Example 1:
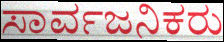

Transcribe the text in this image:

ಸಾರ್ವಜನಿಕರು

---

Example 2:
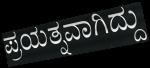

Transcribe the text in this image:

ಪ್ರಯತ್ನವಾಗಿದ್ದು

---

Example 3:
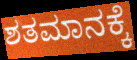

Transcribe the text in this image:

ಶತಮಾನಕ್ಕೆ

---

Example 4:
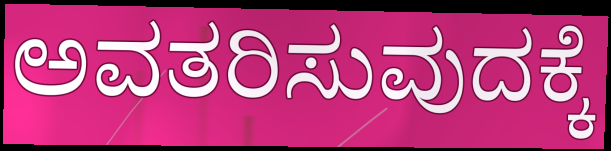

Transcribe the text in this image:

ಅವತರಿಸುವುದಕ್ಕೆ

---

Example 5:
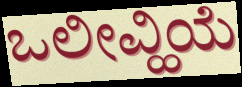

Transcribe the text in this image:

ಒಲೀವ್ಹಿಯೆ